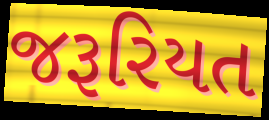
જરૂરિયત